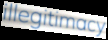
illegitimacy